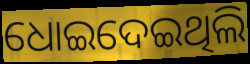
ଧୋଇଦେଇଥିଲି